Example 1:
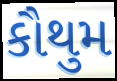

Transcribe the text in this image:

કૌથુમ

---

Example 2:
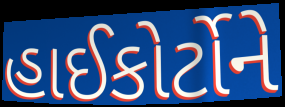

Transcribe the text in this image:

હાઈકોર્ટોને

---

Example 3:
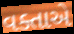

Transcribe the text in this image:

વક્તાએ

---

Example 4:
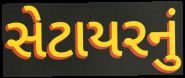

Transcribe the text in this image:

સેટાયરનું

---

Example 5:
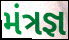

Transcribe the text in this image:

મંત્રજ્ઞ